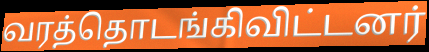
வரத்தொடங்கிவிட்டனர்